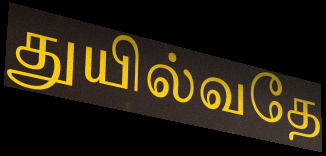
துயில்வதே